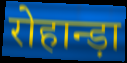
रोहान्ड़ा